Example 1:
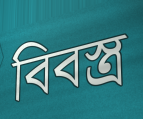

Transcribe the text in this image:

বিবস্ত্র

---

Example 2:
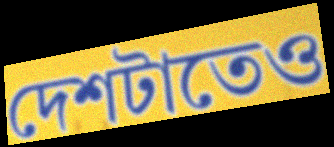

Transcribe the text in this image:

দেশটাতেও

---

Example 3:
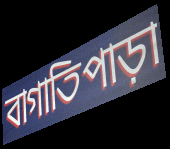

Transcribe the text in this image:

বাগাতিপাড়া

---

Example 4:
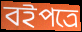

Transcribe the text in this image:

বইপত্রে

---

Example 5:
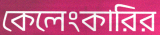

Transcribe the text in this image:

কেলেংকারির